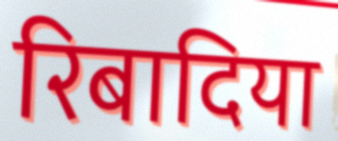
रिबादिया